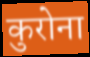
कुरोना